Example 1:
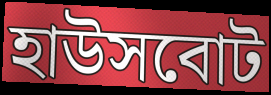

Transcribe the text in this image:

হাউসবোট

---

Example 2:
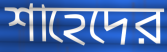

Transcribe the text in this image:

শাহেদের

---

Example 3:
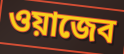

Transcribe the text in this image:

ওয়াজেব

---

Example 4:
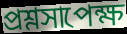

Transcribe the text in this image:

প্রশ্নসাপেক্ষ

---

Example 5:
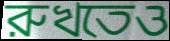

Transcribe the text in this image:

রুখতেও